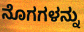
ನೊಗಗಳನ್ನು